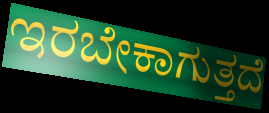
ಇರಬೇಕಾಗುತ್ತದೆ